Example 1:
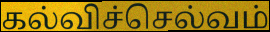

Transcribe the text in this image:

கல்விச்செல்வம்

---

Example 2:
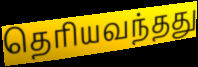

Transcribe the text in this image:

தெரியவந்தது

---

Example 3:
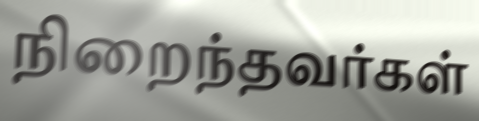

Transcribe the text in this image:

நிறைந்தவர்கள்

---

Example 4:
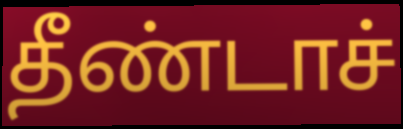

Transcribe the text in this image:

தீண்டாச்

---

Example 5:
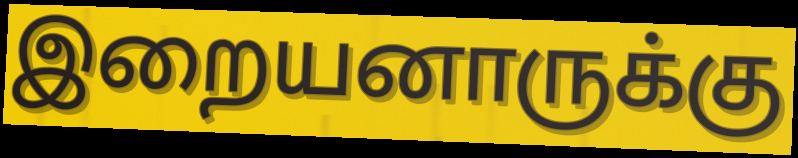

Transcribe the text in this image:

இறையனாருக்கு